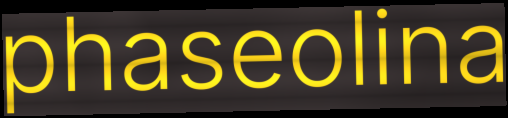
phaseolina